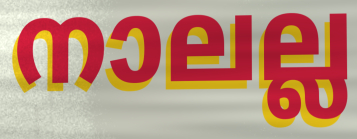
നാലല്ല